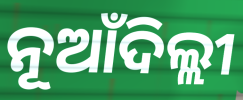
ନୂଆଁଦିଲ୍ଲୀ